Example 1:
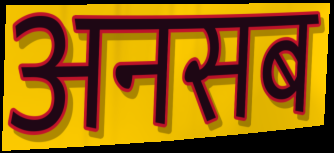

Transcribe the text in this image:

अनसब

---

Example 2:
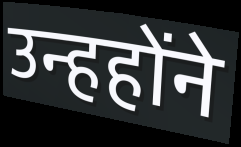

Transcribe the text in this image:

उन्हहोंने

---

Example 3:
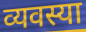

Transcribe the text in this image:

व्यवस्या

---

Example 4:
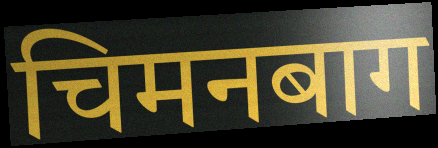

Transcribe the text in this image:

चिमनबाग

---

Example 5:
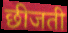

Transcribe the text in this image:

छीजती